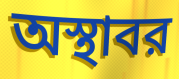
অস্থাবর